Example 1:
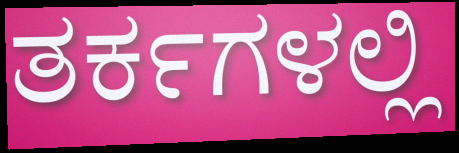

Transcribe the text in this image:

ತರ್ಕಗಳಲ್ಲಿ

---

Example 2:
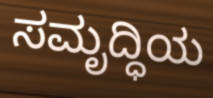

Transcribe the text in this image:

ಸಮೃದ್ಧಿಯ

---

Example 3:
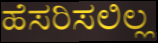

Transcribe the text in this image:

ಹೆಸರಿಸಲಿಲ್ಲ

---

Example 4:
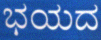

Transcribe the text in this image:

ಭಯದ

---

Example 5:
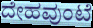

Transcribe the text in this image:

ದೇಹವುಂಟೆ